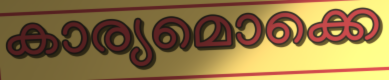
കാര്യമൊക്കെ